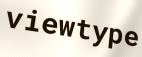
viewtype